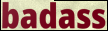
badass